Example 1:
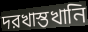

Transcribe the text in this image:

দরখাস্তখানি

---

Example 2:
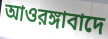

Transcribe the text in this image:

আওরঙ্গাবাদে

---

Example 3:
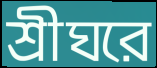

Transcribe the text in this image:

শ্রীঘরে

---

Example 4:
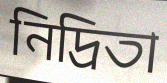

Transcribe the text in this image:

নিদ্রিতা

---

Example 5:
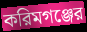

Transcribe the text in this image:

করিমগঞ্জের